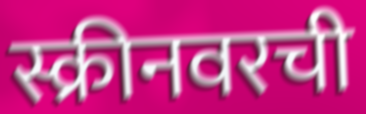
स्क्रीनवरची